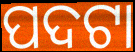
ପଦଟା